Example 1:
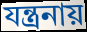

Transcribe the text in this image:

যন্ত্রনায়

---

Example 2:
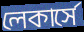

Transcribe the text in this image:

লেকার্সে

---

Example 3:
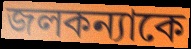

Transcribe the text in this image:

জলকন্যাকে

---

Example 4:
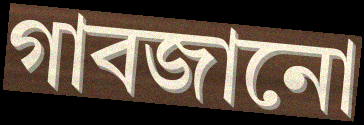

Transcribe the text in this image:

গাবজানো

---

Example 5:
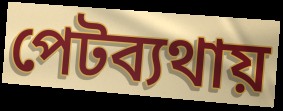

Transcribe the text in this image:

পেটব্যথায়